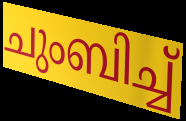
ചുംബിച്ച്